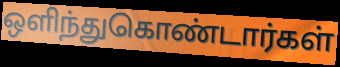
ஒளிந்துகொண்டார்கள்